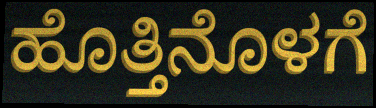
ಹೊತ್ತಿನೊಳಗೆ